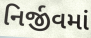
નિર્જીવમાં